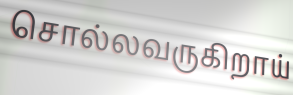
சொல்லவருகிறாய்